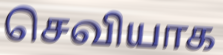
செவியாக